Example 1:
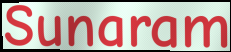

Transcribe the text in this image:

Sunaram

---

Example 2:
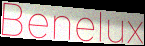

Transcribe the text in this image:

Benelux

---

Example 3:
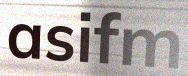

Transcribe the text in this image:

asifm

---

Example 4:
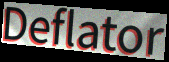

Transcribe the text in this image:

Deflator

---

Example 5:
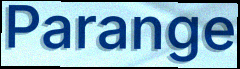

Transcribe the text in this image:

Parange